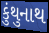
કુંથુનાથ